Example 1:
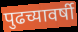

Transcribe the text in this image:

पुढच्यावर्षी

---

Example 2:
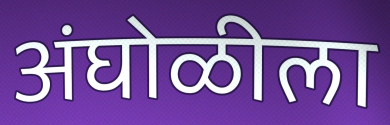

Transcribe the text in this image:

अंघोळीला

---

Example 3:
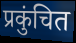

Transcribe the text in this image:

प्रकुंचित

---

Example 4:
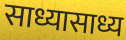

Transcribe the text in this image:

साध्यासाध्य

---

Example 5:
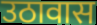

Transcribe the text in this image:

उठावास